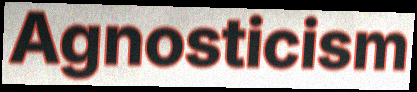
Agnosticism